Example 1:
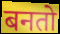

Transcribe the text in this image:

बनतो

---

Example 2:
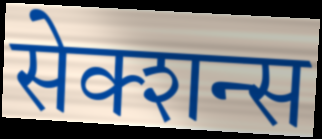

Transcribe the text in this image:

सेक्शन्स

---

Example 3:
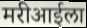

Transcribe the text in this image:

मरीआईला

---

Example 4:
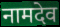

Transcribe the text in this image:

नामदेव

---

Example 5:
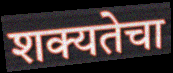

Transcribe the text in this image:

शक्यतेचा